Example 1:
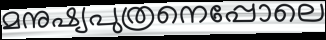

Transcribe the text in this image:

മനുഷ്യപുത്രനെപ്പോലെ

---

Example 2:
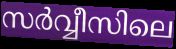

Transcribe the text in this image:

സർവ്വീസിലെ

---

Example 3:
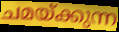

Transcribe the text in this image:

ചമയ്ക്കുന്ന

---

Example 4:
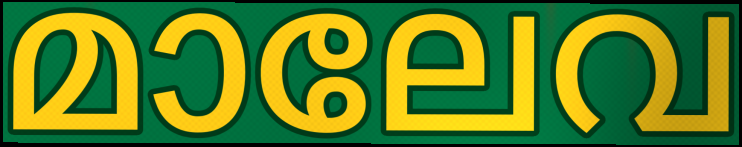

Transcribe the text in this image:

മാലേവ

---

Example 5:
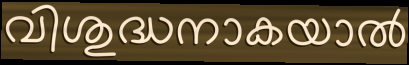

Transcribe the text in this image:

വിശുദ്ധനാകയാൽ